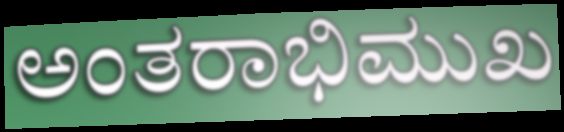
ಅಂತರಾಭಿಮುಖ